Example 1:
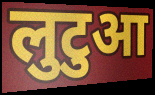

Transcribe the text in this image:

लुटुआ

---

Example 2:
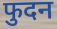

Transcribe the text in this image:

फुदन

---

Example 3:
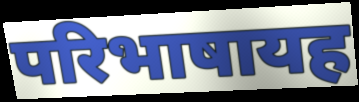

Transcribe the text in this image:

परिभाषायह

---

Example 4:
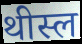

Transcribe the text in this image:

थीस्ल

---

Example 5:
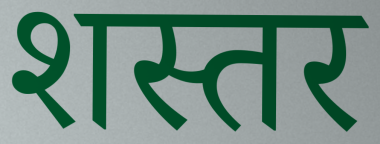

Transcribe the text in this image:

शस्तर